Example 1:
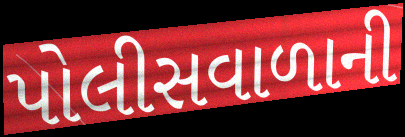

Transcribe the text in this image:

પોલીસવાળાની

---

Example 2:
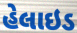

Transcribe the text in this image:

હેલાઇડ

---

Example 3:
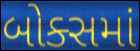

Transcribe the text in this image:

બોક્સમાં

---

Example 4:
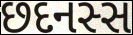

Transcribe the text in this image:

છદનસ્સ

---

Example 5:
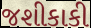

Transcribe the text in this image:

જશીકાકી